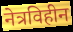
नेत्रविहीन